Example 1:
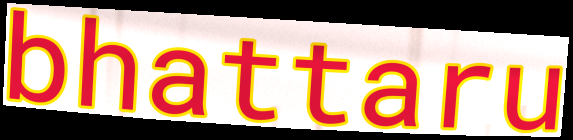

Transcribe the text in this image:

bhattaru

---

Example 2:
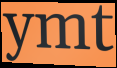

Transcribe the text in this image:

ymt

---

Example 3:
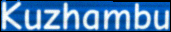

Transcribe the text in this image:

Kuzhambu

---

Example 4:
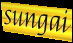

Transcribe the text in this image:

sungai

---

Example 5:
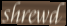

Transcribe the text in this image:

shrewd